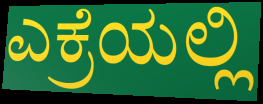
ಎಕ್ರೆಯಲ್ಲಿ